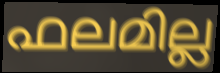
ഫലമില്ല